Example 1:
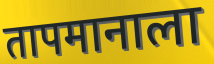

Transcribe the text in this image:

तापमानाला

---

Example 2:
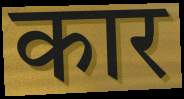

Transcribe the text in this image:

कार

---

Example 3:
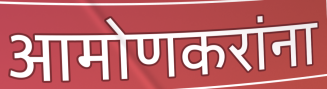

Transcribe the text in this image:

आमोणकरांना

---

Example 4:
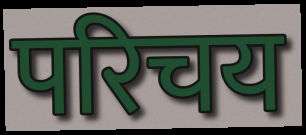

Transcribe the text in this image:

परिचय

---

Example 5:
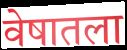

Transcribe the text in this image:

वेषातला